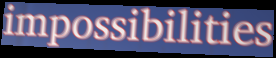
impossibilities